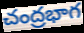
చంద్రభాగ